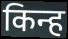
किन्ह